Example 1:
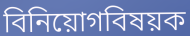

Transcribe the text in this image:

বিনিয়োগবিষয়ক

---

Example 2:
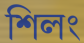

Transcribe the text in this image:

শিলং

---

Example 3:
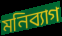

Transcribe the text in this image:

মনিব্যাগ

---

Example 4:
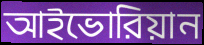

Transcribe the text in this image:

আইভোরিয়ান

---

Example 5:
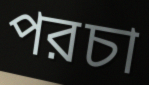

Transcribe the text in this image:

পরচা